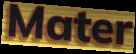
Mater